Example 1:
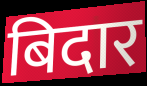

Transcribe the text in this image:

बिदार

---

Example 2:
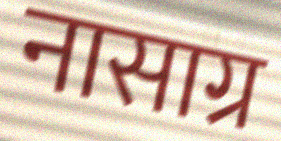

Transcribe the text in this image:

नासाग्र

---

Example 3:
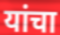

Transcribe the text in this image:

यांचा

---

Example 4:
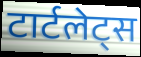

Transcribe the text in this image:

टार्टलेट्स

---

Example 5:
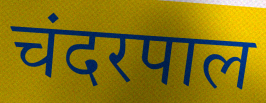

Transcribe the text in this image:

चंदरपाल